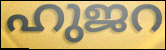
ഹുജറ